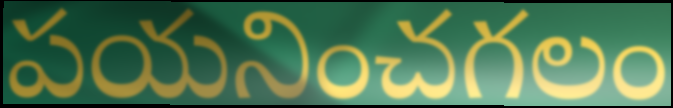
పయనించగలం